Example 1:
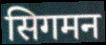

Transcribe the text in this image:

सिगमन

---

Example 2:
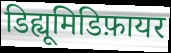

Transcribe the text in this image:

डिह्यूमिडिफ़ायर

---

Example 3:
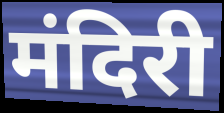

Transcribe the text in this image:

मंदिरी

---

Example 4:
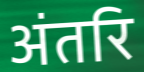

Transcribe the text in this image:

अंतरि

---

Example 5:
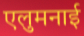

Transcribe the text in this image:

एलुमनाई